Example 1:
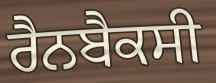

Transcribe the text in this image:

ਰੈਨਬੈਕਸੀ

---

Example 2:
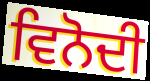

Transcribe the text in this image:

ਵਿਨੋਦੀ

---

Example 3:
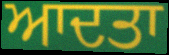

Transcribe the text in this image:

ਆਦਤਾ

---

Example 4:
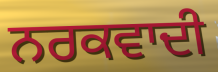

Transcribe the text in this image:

ਨਰਕਵਾਦੀ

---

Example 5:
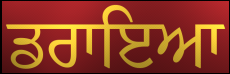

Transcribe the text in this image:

ਡਰਾਇਆ